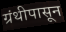
ग्रंथीपासून